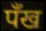
पँख